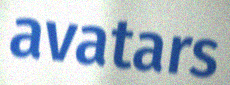
avatars